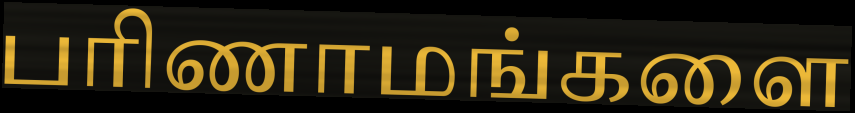
பரிணாமங்களை